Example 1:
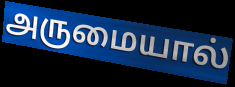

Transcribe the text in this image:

அருமையால்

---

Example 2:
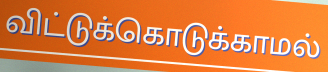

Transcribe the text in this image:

விட்டுக்கொடுக்காமல்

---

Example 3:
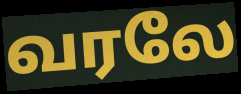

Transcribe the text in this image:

வரலே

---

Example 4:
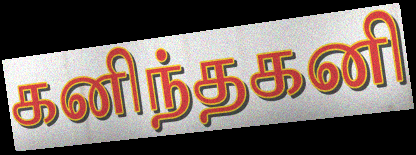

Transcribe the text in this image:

கனிந்தகனி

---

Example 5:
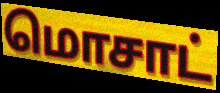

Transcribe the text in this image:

மொசாட்